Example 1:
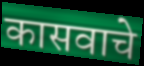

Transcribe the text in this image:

कासवाचे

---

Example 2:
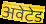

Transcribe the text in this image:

अवेटेड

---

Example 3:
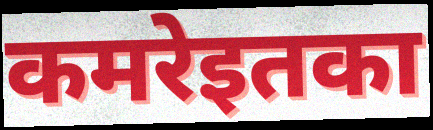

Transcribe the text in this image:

कमरेइतका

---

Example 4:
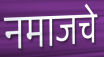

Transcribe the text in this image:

नमाजचे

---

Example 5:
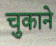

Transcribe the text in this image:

चुकाने